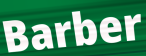
Barber